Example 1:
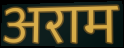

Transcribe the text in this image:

अराम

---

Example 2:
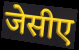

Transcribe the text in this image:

जेसीए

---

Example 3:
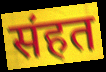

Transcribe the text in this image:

संहत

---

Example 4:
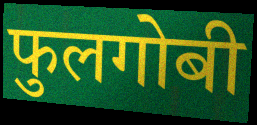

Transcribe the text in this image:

फुलगोबी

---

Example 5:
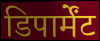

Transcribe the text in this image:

डिपार्मेंट